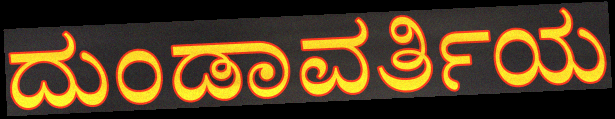
ದುಂಡಾವರ್ತಿಯ